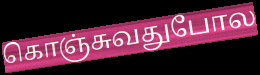
கொஞ்சுவதுபோல